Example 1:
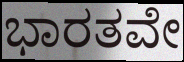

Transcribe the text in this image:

ಭಾರತವೇ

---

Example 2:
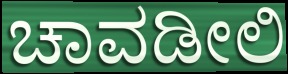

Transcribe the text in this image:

ಚಾವಡೀಲಿ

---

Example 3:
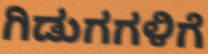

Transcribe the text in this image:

ಗಿಡುಗಗಳಿಗೆ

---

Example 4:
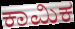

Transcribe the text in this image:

ಕಾಮಿಕ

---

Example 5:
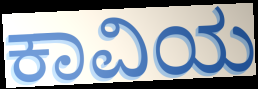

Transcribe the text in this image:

ಕಾವಿಯ